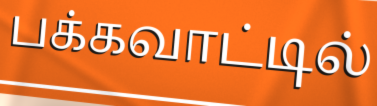
பக்கவாட்டில்